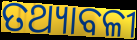
ତଥ୍ୟାବଳୀ